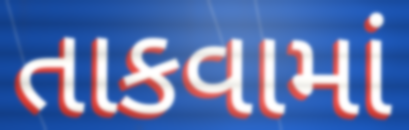
તાકવામાં